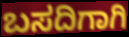
ಬಸದಿಗಾಗಿ